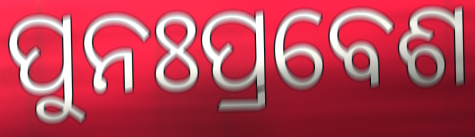
ପୁନଃପ୍ରବେଶ